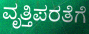
ವೃತ್ತಿಪರತೆಗೆ